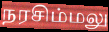
நரசிம்மலு